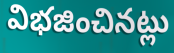
విభజించినట్లు